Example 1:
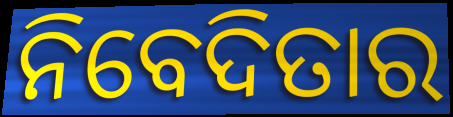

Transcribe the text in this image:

ନିବେଦିତାର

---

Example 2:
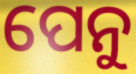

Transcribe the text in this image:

ପେନୁ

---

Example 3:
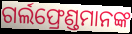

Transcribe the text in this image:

ଗର୍ଲଫ୍ରେଣ୍ଡମାନଙ୍କ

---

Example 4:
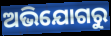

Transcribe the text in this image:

ଅଭିଯୋଗରୁ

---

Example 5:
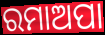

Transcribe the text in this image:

ରମାଅପା